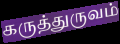
கருத்துருவம்